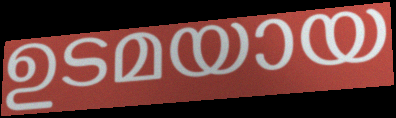
ഉടമയായ